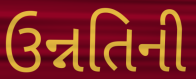
ઉન્નતિની